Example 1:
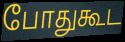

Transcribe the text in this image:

போதுகூட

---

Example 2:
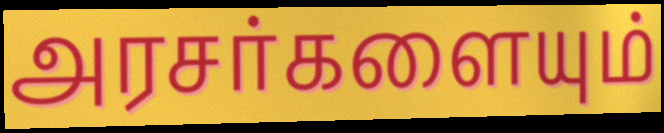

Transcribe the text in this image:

அரசர்களையும்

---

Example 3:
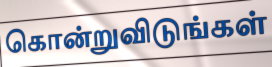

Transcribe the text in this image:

கொன்றுவிடுங்கள்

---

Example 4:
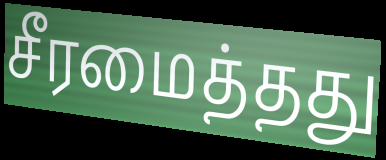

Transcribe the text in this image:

சீரமைத்தது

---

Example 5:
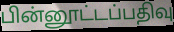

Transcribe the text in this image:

பின்னூட்டப்பதிவு